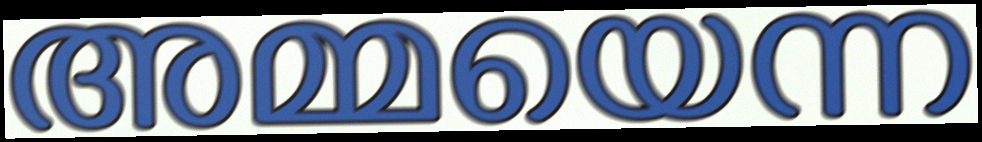
അമ്മയെന്ന